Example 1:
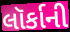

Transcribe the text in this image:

લૉર્કાની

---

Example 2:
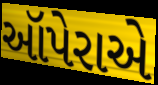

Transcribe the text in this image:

ઑપેરાએ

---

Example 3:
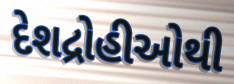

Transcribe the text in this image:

દેશદ્રોહીઓથી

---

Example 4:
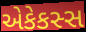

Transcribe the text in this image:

એકેકસ્સ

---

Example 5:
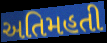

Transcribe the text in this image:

અતિમહતી